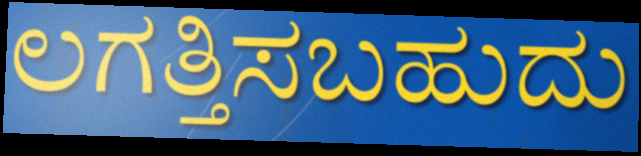
ಲಗತ್ತಿಸಬಹುದು